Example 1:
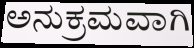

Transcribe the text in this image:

ಅನುಕ್ರಮವಾಗಿ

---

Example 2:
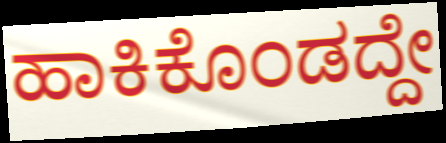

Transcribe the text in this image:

ಹಾಕಿಕೊಂಡದ್ದೇ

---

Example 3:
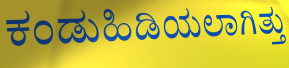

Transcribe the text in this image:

ಕಂಡುಹಿಡಿಯಲಾಗಿತ್ತು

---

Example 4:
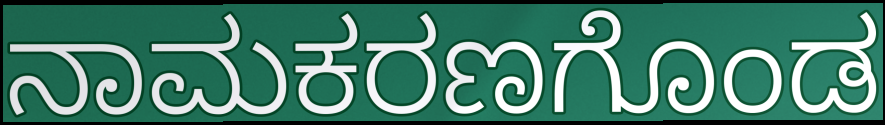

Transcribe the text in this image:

ನಾಮಕರಣಗೊಂಡ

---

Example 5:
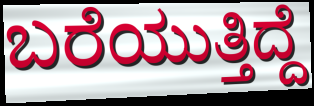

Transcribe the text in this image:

ಬರೆಯುತ್ತಿದ್ದೆ